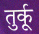
तुर्कू